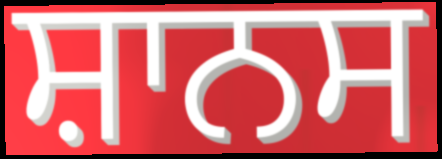
ਸ਼ਾਨਸ